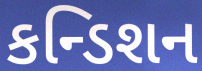
કન્ડિશન